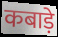
कबाड़े